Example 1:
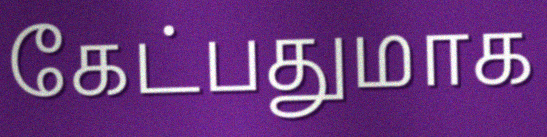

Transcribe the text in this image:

கேட்பதுமாக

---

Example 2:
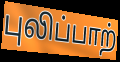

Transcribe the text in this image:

புலிப்பாற்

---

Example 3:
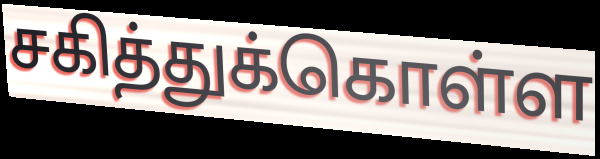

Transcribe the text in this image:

சகித்துக்கொள்ள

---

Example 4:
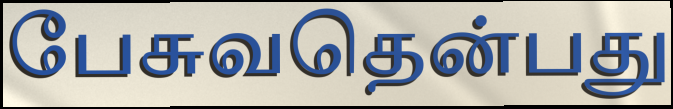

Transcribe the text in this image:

பேசுவதென்பது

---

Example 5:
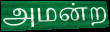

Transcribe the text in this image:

அமன்ற